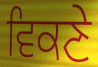
ਵਿਕਣੇ